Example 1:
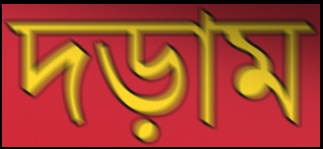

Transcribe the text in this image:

দড়াম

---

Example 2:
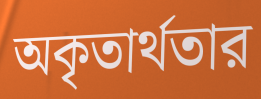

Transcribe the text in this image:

অকৃতার্থতার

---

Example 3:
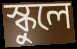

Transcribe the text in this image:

স্কুলে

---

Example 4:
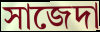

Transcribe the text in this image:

সাজেদা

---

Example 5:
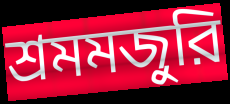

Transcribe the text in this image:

শ্রমমজুরি